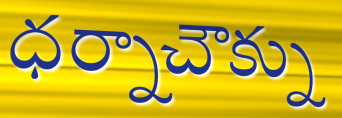
ధర్నాచౌక్ను